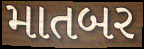
માતબર